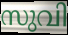
സുവി